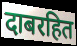
दाबरहित